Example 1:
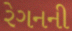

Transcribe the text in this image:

રેગનની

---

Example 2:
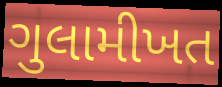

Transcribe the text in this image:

ગુલામીખત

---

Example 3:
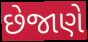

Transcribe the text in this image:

છેજાણે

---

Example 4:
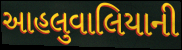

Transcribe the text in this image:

આહલુવાલિયાની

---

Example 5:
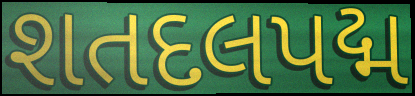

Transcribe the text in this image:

શતદલપદ્મ